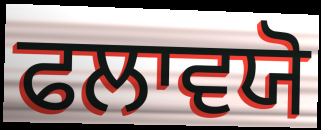
ਫਲਾਵਯੋ